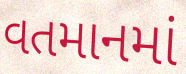
વતમાનમાં